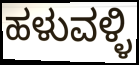
ಹಳುವಳ್ಳಿ